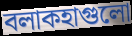
বলাকহাগুলো